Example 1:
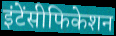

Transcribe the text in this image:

इंटेंसीफिकेशन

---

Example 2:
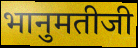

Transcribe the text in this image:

भानुमतीजी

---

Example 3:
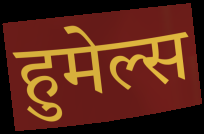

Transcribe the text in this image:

हुमेल्स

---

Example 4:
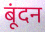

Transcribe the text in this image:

बूंदन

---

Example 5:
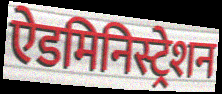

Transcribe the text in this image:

ऐडमिनिस्ट्रेशन